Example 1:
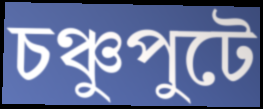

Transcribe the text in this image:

চঞ্চুপুটে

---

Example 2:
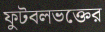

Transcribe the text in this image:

ফুটবলভক্তের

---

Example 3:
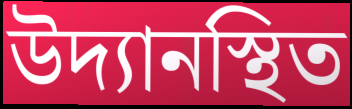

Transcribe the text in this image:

উদ্যানস্থিত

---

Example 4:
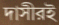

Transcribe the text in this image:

দাসীরই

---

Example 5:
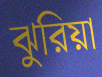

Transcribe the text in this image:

ঝুরিয়া